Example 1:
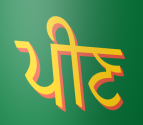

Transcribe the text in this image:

ਪੀਣ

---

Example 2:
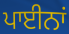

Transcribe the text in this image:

ਪਾਈਨਾਂ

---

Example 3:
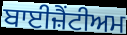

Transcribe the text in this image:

ਬਾਈਜ਼ੈਂਟੀਅਮ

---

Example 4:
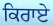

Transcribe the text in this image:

ਕਿਰਾਏ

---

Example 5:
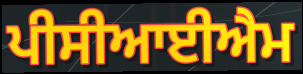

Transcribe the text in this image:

ਪੀਸੀਆਈਐਮ